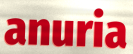
anuria